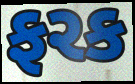
ફરક